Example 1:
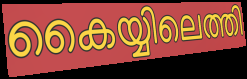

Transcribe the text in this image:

കൈയ്യിലെത്തി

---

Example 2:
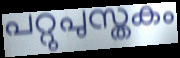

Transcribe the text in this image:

പറ്റുപുസ്തകം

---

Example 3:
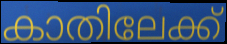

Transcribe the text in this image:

കാതിലേക്ക്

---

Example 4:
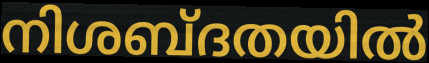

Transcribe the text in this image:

നിശബ്ദതയിൽ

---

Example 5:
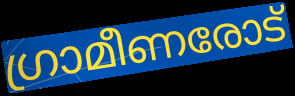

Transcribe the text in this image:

ഗ്രാമീണരോട്